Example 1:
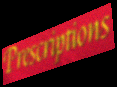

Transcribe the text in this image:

Prescriptions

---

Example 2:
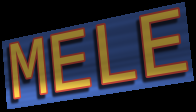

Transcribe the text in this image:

MELE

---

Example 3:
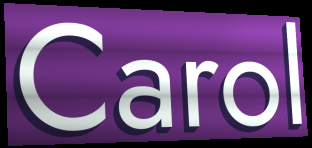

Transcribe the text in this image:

Carol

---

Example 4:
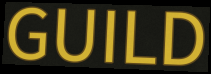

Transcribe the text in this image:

GUILD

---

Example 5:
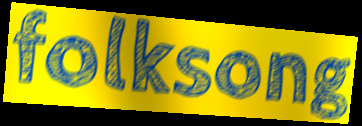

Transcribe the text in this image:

folksong